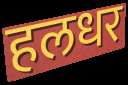
हलधर